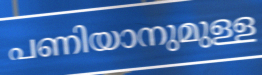
പണിയാനുമുള്ള